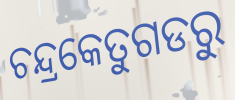
ଚନ୍ଦ୍ରକେତୁଗଡରୁ